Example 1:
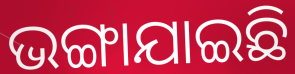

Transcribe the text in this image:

ଭଙ୍ଗାଯାଇଛି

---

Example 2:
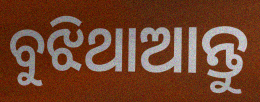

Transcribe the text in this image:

ବୁଝିଥାଆନ୍ତୁ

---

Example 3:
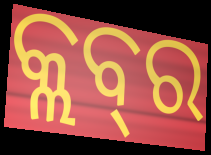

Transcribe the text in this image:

କ୍ଲବ୍‌ର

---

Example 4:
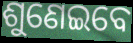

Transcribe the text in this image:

ଶୁଣେଇବେ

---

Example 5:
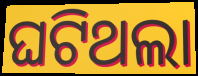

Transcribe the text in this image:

ଘଟିଥଲା